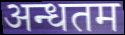
अन्धतम